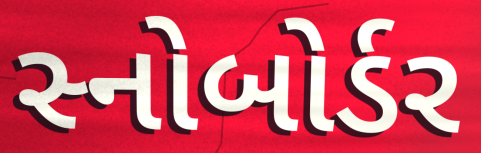
સ્નોબોર્ડર